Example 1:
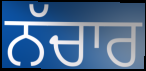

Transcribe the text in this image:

ਨੱਚਾਰ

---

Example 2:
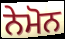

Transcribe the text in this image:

ਨੇਮੋਨ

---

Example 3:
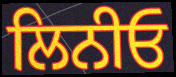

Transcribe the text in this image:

ਲਿਨੀਓ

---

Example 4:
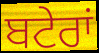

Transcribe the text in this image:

ਬਟੇਰਾਂ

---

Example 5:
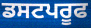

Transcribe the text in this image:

ਡਸਟਪਰੂਫ